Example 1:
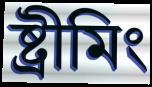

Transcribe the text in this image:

ষ্ট্ৰীমিং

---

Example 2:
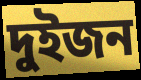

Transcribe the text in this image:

দুইজন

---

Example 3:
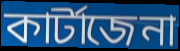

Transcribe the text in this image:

কাৰ্টাজেনা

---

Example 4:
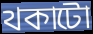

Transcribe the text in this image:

থকাটো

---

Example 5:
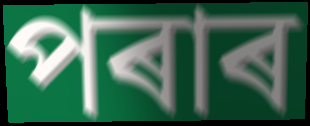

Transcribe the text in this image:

পৰাৰ